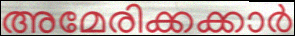
അമേരിക്കക്കാർ